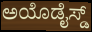
ಅಯೊಡೈಸ್ಡ್